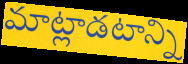
మాట్లాడటాన్ని